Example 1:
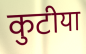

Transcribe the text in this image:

कुटीया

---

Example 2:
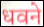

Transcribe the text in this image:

धवने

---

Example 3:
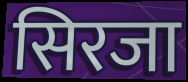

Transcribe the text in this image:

सिरजा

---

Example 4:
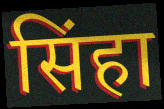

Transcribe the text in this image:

सिंहा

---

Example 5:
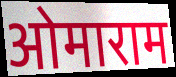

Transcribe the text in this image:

ओमाराम